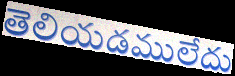
తెలియడములేదు